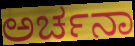
ಅರ್ಚನಾ